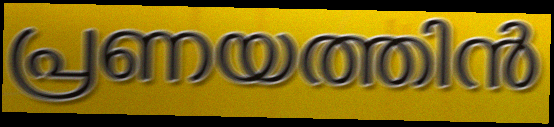
പ്രണയത്തിൻ